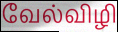
வேல்விழி